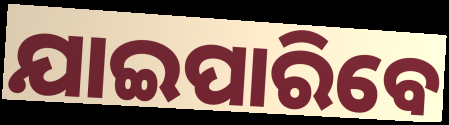
ଯାଇପାରିବେ